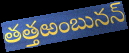
తత్తఱంబునన్